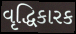
વૃદ્ધિકારક